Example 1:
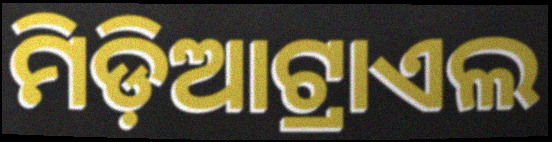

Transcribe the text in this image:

ମିଡ଼ିଆଟ୍ରାଏଲ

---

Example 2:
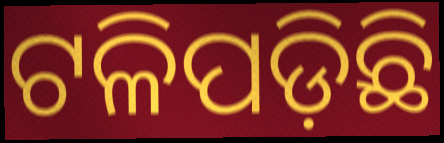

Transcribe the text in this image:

ଟଳିପଡ଼ିଛି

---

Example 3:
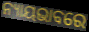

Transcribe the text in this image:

ନ୍ୟାୟଭାବରେ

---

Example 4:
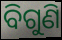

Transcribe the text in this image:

ବିଗୁଣି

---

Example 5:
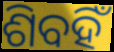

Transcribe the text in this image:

ଶିବହିଁ